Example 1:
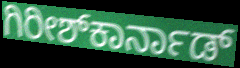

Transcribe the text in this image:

ಗಿರೀಶ್‌ಕಾರ್ನಾಡ್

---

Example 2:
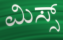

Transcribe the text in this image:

ಮಿಸ್ಸ್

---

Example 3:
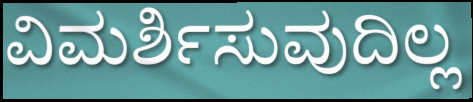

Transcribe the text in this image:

ವಿಮರ್ಶಿಸುವುದಿಲ್ಲ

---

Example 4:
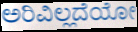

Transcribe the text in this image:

ಅರಿವಿಲ್ಲದೆಯೋ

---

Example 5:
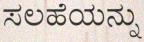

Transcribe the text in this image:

ಸಲಹೆಯನ್ನು